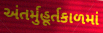
અંતર્મુહૂર્તકાળમાં